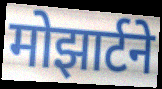
मोझार्टने